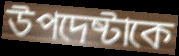
উপদেষ্টাকে